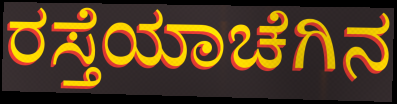
ರಸ್ತೆಯಾಚೆಗಿನ